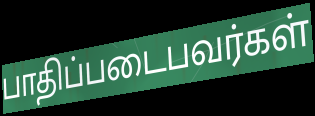
பாதிப்படைபவர்கள்